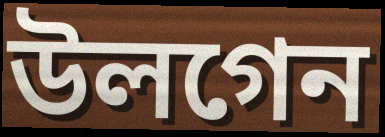
উলগেন